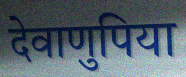
देवाणुपिया